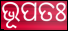
ଭୂପତଃ